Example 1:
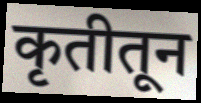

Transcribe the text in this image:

कृतीतून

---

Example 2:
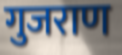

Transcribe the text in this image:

गुजराण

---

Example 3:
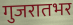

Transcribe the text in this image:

गुजरातभर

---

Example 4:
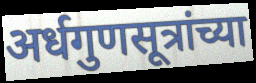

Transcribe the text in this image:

अर्धगुणसूत्रांच्या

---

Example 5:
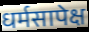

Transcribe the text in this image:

धर्मसापेक्ष